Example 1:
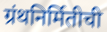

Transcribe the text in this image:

ग्रंथनिर्मितीची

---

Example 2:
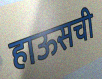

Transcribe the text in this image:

हाऊसची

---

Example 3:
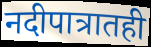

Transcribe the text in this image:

नदीपात्रातही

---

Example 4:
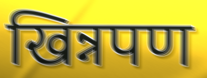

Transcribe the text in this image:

खिन्नपण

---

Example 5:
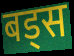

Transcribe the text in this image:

बड्स